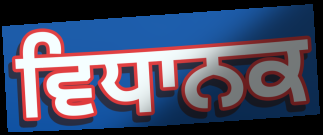
ਵਿਧਾਨਕ